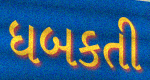
ધબકતી